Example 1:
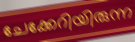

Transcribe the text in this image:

ചേക്കേറിയിരുന്ന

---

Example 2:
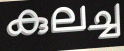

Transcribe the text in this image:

കുലച്ച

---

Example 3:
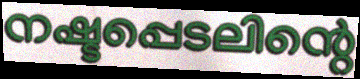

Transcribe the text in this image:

നഷ്ടപ്പെടലിന്റെ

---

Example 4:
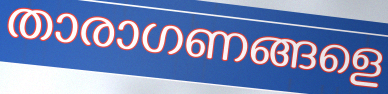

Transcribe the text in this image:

താരാഗണങ്ങളെ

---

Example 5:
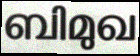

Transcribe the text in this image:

ബിമുഖ